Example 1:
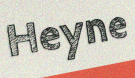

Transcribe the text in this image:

Heyne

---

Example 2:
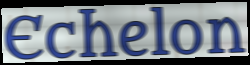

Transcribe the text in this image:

Echelon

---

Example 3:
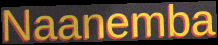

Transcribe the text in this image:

Naanemba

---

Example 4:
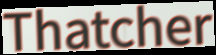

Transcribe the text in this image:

Thatcher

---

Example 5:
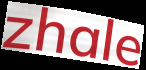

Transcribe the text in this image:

zhale